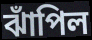
ঝাঁপিল